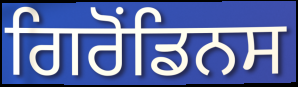
ਗਿਰੋਂਡਿਨਸ